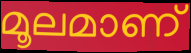
മൂലമാണ്